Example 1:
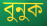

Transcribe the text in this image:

বুনুক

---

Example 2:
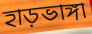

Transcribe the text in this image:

হাড়ভাঙ্গা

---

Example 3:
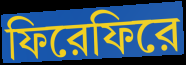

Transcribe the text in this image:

ফিরেফিরে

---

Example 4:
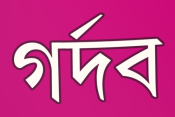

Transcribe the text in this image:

গর্দব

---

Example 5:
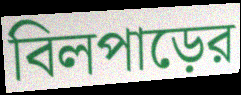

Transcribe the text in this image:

বিলপাড়ের